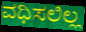
ವಧಿಸಲಿಲ್ಲ